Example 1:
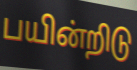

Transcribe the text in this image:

பயின்றிடு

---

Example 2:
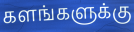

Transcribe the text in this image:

களங்களுக்கு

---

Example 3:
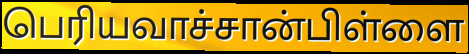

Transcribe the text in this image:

பெரியவாச்சான்பிள்ளை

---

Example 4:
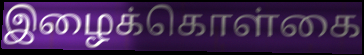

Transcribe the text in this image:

இழைக்கொள்கை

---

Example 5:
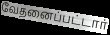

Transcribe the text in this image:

வேதனைப்பட்டார்